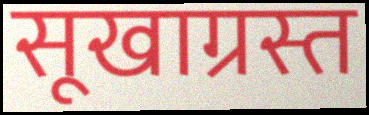
सूखाग्रस्‍त